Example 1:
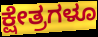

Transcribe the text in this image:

ಕ್ಷೇತ್ರಗಳೂ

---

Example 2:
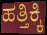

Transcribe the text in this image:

ಹತ್ತಿಕ್ಕಿ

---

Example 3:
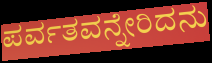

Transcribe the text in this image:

ಪರ್ವತವನ್ನೇರಿದನು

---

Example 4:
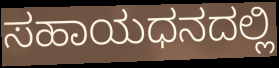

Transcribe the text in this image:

ಸಹಾಯಧನದಲ್ಲಿ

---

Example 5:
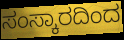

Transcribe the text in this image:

ಸಂಸ್ಕಾರದಿಂದ